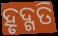
ହୃଦ୍ଗତି